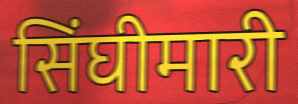
सिंघीमारी